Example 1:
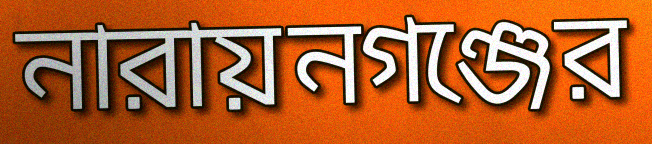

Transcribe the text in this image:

নারায়নগঞ্জের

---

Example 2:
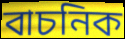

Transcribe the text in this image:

বাচনিক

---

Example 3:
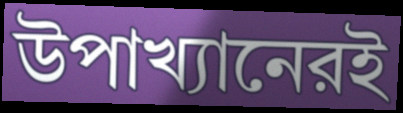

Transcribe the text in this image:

উপাখ্যানেরই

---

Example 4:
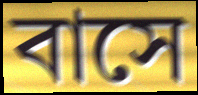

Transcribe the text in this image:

বাসে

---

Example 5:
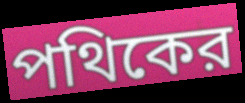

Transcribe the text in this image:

পথিকের